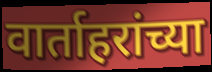
वार्ताहरांच्या